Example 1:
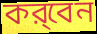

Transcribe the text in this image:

কর্‌বেন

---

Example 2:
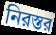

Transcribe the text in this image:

নিরস্তর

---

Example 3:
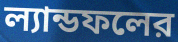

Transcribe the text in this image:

ল্যান্ডফলের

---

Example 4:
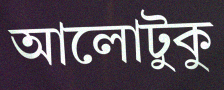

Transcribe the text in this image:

আলোটুকু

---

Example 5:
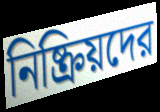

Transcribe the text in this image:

নিষ্ক্রিয়দের